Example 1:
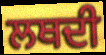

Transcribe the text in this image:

ਲਥਦੀ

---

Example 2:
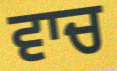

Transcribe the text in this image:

ਵਾਚ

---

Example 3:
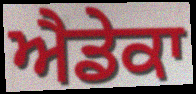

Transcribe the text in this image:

ਐਡੇਕਾ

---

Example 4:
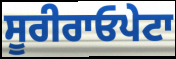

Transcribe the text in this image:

ਸੂਰੀਰਾਓਪੇਟਾ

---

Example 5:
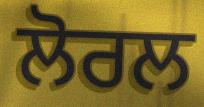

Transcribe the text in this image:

ਲੋਰਲ